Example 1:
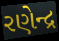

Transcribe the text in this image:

રણેન્દ્ર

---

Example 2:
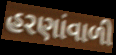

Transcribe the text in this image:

હરણાંવાળી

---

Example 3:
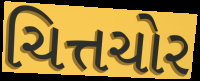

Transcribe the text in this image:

ચિત્તચોર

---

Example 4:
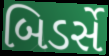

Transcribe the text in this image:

બિડર્સે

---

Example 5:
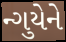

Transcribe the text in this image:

ન્ગુયેને